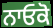
ਨਾਓਕੋ